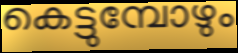
കെട്ടുമ്പോഴും